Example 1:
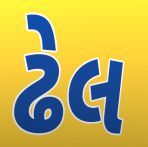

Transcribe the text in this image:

ઢેલ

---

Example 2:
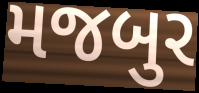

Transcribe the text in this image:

મજબુર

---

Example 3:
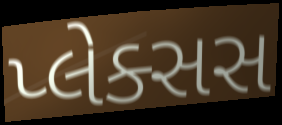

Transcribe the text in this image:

પ્લેક્સસ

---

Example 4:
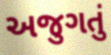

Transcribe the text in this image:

અજુગતું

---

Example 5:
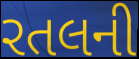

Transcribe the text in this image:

રતલની